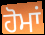
ਹੋਮਾਂ